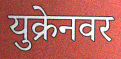
युक्रेनवर